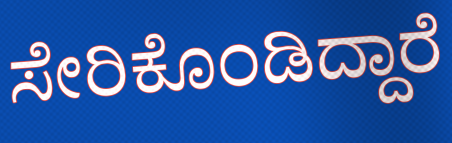
ಸೇರಿಕೊಂಡಿದ್ದಾರೆ